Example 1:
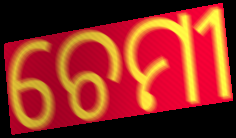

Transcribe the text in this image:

ଚେମୀ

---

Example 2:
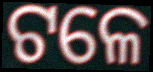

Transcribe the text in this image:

ଟଳେ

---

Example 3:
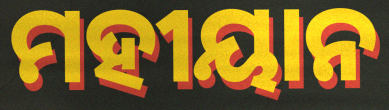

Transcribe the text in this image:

ମହୀୟାନ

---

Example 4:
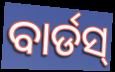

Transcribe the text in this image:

ବାର୍ଡସ୍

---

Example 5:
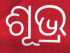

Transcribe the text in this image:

ଶୂଭ୍ର